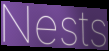
Nests